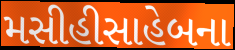
મસીહીસાહેબના